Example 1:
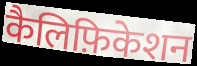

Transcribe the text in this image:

कैलिफ़िकेशन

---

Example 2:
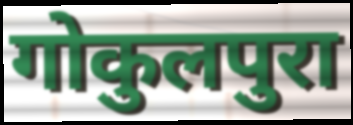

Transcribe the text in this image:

गोकुलपुरा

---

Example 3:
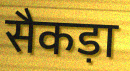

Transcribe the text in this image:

सैकड़ा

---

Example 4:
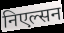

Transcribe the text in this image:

निएल्सन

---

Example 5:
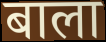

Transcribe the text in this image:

बाला